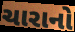
ચારાનો